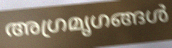
അഗ്രമൃഗങ്ങൾ